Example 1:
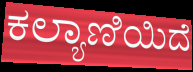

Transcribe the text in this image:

ಕಲ್ಯಾಣಿಯಿದೆ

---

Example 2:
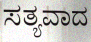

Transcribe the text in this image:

ಸತ್ಯವಾದ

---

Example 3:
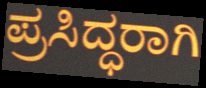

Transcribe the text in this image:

ಪ್ರಸಿದ್ಧರಾಗಿ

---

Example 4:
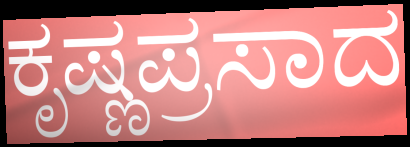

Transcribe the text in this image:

ಕೃಷ್ಣಪ್ರಸಾದ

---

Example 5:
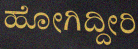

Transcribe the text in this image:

ಹೋಗಿದ್ದೀರಿ